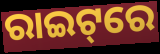
ରାଇଟ୍‌ରେ